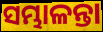
ସମ୍ଭାଳନ୍ତା